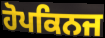
ਹੋਪਕਿਨਜ